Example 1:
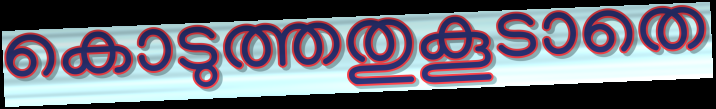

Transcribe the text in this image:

കൊടുത്തതുകൂടാതെ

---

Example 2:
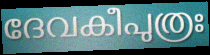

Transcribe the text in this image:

ദേവകീപുത്രഃ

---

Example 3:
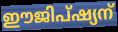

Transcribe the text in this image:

ഈജിപ്ഷ്യന്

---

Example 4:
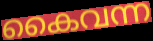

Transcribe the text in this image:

കൈവന്ന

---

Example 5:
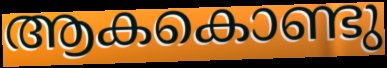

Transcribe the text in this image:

ആകകൊണ്ടു